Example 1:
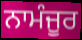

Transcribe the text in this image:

ਨਾਮੰਜੂਰ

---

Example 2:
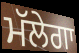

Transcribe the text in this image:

ਮੱਲੇਗਾ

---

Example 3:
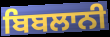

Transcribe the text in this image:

ਬਿਬਲਾਨੀ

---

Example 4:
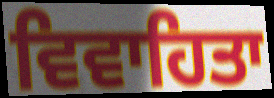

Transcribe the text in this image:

ਵਿਵਾਹਿਤਾ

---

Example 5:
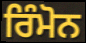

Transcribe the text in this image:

ਰਿੰਮੋਨ